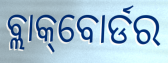
ବ୍ଲାକ୍‌ବୋର୍ଡର